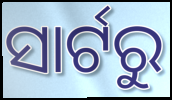
ସାର୍ଟରୁ